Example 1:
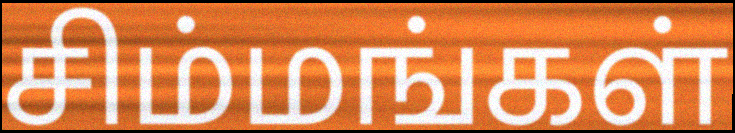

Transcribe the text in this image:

சிம்மங்கள்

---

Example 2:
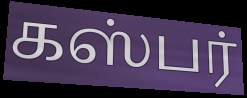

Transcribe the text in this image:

கஸ்பர்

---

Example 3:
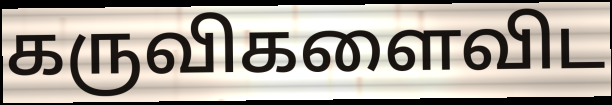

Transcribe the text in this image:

கருவிகளைவிட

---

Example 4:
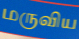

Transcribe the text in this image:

மருவிய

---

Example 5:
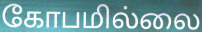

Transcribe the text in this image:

கோபமில்லை